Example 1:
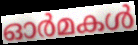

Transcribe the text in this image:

ഓർമകൾ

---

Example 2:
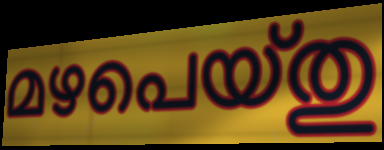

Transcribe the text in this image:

മഴപെയ്തു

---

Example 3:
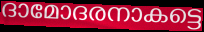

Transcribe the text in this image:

ദാമോദരനാകട്ടെ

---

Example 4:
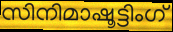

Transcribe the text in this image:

സിനിമാഷൂട്ടിംഗ്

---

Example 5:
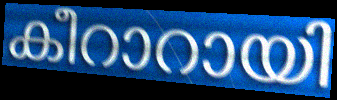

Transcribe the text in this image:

കീറാറായി